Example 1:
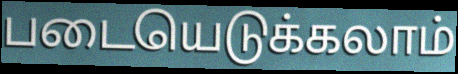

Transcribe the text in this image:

படையெடுக்கலாம்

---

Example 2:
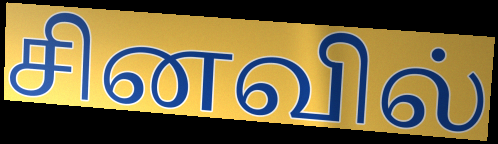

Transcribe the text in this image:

சினவில்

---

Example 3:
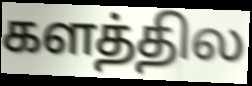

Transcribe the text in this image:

களத்தில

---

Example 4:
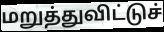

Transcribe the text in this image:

மறுத்துவிட்டுச்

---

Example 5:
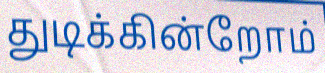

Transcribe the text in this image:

துடிக்கின்றோம்